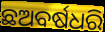
ଛଅବର୍ଷଧରି